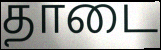
தாடை